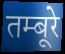
तम्बूरे